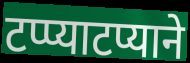
टप्प्याटप्याने